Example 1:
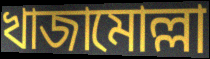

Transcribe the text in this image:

খাজামোল্লা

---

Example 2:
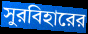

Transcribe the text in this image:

সুরবিহারের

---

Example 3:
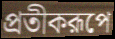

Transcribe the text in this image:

প্রতীকরূপে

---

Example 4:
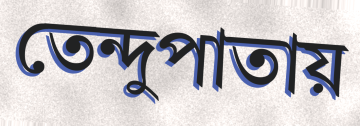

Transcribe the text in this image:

তেন্দুপাতায়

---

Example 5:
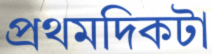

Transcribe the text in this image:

প্রথমদিকটা